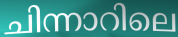
ചിന്നാറിലെ